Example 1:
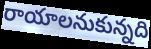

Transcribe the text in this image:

రాయాలనుకున్నది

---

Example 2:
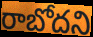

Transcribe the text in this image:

రాబోదని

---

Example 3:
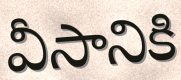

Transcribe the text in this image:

వీసానికి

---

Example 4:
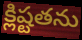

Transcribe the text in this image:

క్లిష్టతను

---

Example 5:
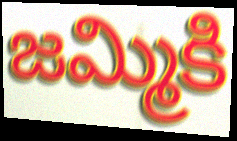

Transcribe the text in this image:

జమ్మికి